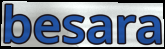
besara